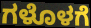
ಗಳೊಳಗೆ